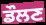
ਡੌਲਣ